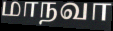
மாநவா